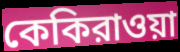
কেকিরাওয়া